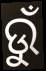
ଉୁଁ